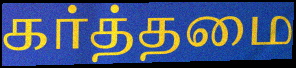
கர்த்தமை